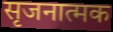
सृजनात्मक